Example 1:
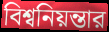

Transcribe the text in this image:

বিশ্বনিয়ন্তার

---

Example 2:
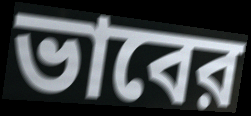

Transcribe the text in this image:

ভাবের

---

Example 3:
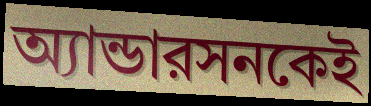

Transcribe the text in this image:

অ্যান্ডারসনকেই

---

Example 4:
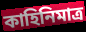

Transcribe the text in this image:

কাহিনিমাত্র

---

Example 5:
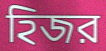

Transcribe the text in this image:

হিজর